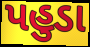
પહુડા